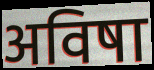
अविषा